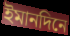
ইমানদিনে